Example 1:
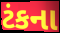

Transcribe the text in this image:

ટંકના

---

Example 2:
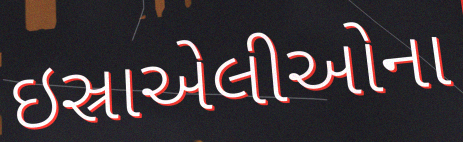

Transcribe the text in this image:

ઇસ્રાએલીઓના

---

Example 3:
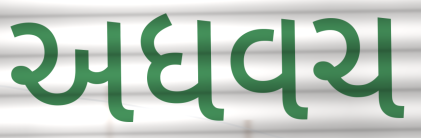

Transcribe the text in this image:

અધવચ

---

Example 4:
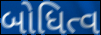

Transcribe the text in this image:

બોધિત્વ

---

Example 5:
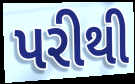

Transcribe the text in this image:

પરીથી